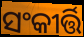
ସଂକୀର୍ତ୍ତି